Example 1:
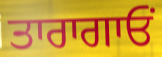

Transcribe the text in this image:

ਤਾਰਾਗਾਓਂ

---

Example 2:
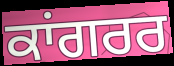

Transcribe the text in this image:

ਕਾਂਗਰਰ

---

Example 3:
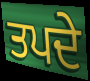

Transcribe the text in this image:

ਤਪਦੇ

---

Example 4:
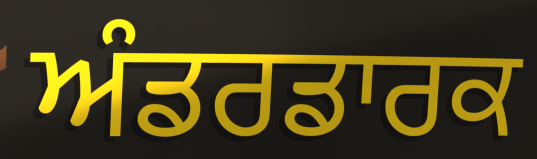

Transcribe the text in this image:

ਅੰਡਰਡਾਰਕ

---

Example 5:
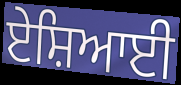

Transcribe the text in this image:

ਏਸ਼ਿਆਈ